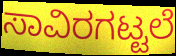
ಸಾವಿರಗಟ್ಟಲೆ